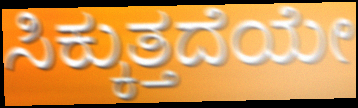
ಸಿಕ್ಕುತ್ತದೆಯೇ